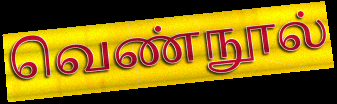
வெண்நூல்